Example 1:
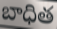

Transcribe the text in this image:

బాధిత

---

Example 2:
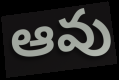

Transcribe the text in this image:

ఆవు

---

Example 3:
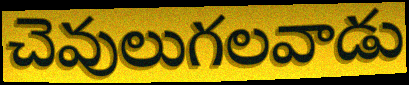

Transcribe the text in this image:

చెవులుగలవాడు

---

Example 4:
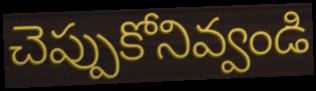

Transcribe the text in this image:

చెప్పుకోనివ్వండి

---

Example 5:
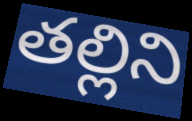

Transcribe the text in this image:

తల్లిని